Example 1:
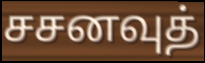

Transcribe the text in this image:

சசனவுத்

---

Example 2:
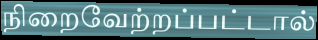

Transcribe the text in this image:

நிறைவேற்றப்பட்டால்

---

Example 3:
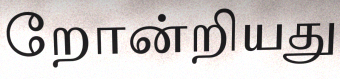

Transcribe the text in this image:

றோன்றியது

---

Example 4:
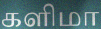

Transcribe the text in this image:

களிமா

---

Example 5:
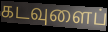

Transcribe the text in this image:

கடவுளைப்